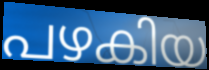
പഴകിയ